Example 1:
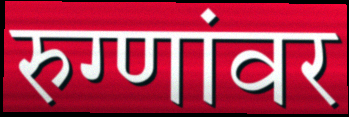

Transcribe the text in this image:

रुग्णांवर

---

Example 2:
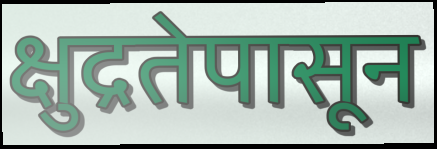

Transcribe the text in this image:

क्षुद्रतेपासून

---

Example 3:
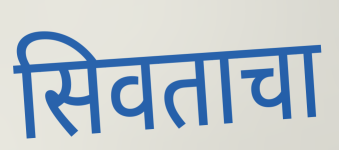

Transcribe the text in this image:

सिवताचा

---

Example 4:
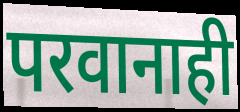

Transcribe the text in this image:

परवानाही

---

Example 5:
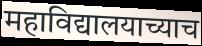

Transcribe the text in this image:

महाविद्यालयाच्याच